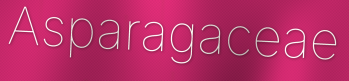
Asparagaceae